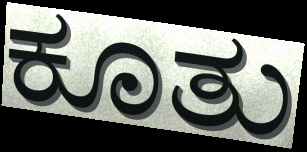
ಕೂತು